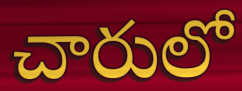
చారులో